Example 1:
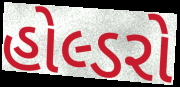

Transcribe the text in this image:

હોલ્ડરો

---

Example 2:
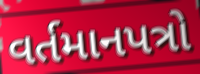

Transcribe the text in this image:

વર્તમાનપત્રો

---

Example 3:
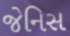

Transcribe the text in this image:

જેનિસ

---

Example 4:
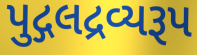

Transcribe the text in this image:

પુદ્ગલદ્રવ્યરૂપ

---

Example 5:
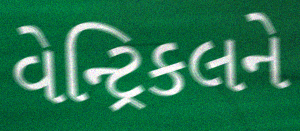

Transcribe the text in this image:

વેન્ટ્રિકલને